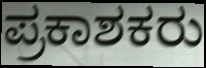
ಪ್ರಕಾಶಕರು